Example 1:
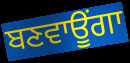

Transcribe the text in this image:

ਬਣਵਾਊਂਗਾ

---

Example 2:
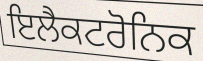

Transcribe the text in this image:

ਇਲੈਕਟਰੋਨਿਕ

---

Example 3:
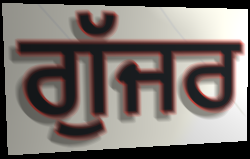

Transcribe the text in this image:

ਗੁੱਜਰ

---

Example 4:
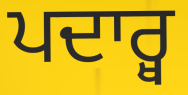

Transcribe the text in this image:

ਪਦਾਰ੍ਥ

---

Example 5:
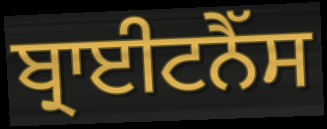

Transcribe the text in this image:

ਬ੍ਰਾਈਟਨੈੱਸ